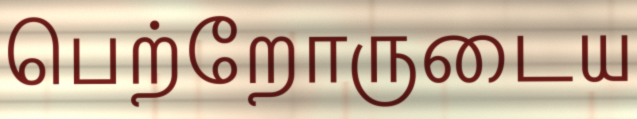
பெற்றோருடைய